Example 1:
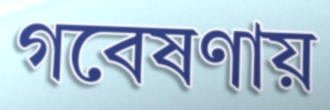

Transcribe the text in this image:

গবেষণায়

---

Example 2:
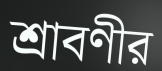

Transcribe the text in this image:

শ্রাবণীর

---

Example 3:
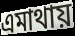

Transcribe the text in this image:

এমাথায়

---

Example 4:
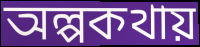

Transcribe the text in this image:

অল্পকথায়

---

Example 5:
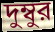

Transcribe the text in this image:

দুম্বুর